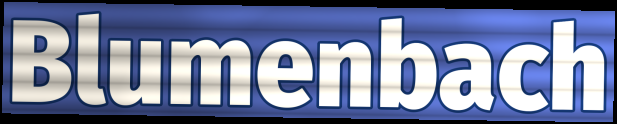
Blumenbach